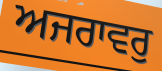
ਅਜਰਾਵਰੁ